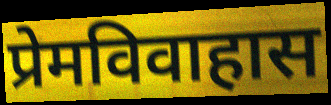
प्रेमविवाहास